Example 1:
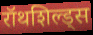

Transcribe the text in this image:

रॉथशिल्ड्स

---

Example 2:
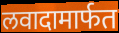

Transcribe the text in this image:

लवादामार्फत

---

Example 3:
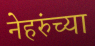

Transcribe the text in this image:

नेहरुंच्या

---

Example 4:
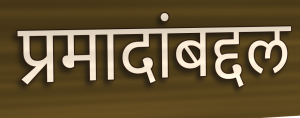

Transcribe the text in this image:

प्रमादांबद्दल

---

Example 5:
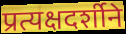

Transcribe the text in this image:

प्रत्यक्षदर्शीने